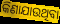
କିଣାଯାଉଥିବା